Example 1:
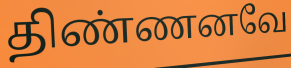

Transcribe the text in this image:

திண்ணனவே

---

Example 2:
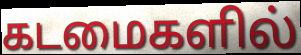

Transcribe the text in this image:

கடமைகளில்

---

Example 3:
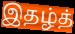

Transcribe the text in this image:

இதழ்த்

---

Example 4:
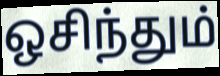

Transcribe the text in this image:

ஒசிந்தும்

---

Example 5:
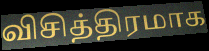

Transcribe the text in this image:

விசித்திரமாக